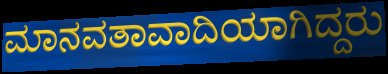
ಮಾನವತಾವಾದಿಯಾಗಿದ್ದರು